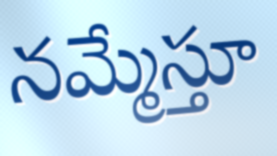
నమ్మేస్తూ